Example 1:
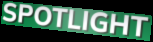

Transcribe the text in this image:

SPOTLIGHT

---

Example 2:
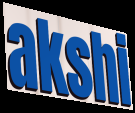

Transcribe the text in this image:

akshi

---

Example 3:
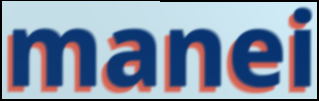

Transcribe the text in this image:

manei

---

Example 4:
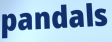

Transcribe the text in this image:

pandals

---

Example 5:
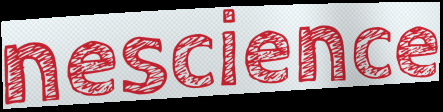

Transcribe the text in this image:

nescience